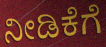
ನೀಡಿಕೆಗೆ